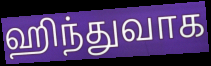
ஹிந்துவாக